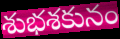
శుభశకునం